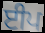
ਈਪ